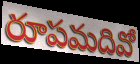
రూపమదివో